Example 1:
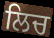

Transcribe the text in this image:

ਲਿਚ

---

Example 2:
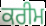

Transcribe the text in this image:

ਕਰੀਮ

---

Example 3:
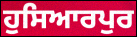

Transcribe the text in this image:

ਹੁਸਿਆਰਪੁਰ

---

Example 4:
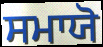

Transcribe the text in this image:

ਸਮਾਯੋ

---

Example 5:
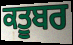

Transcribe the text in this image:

ਕਤੂਬਰ